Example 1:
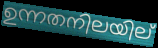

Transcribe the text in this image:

ഉന്നതനിലയില്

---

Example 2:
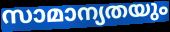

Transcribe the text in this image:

സാമാന്യതയും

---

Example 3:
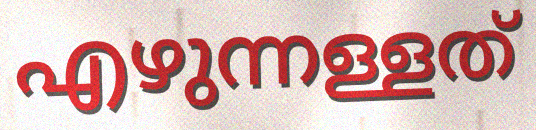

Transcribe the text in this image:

എഴുന്നള്ളത്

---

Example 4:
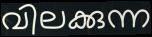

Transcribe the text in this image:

വിലക്കുന്ന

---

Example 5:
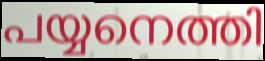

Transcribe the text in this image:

പയ്യനെത്തി